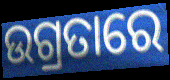
ଉଗ୍ରତାରେ